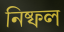
নিষ্ফল